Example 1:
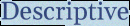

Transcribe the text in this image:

Descriptive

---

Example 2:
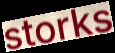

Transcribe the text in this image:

storks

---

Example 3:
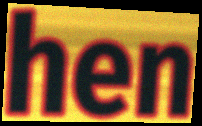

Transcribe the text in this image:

hen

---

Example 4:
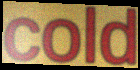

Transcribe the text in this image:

cold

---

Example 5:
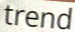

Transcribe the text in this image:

trend